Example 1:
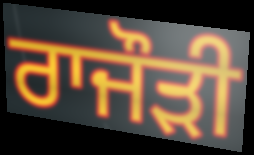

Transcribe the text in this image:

ਰਾਜੌੜੀ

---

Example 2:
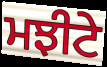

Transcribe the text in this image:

ਮਝੀਟੇ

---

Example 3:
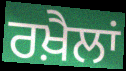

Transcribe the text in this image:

ਰਖ਼ੈਲਾਂ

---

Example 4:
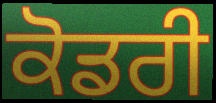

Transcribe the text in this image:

ਕੋਡਰੀ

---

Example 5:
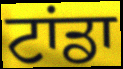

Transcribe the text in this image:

ਟਾਂਡਾ